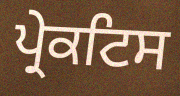
ਪ੍ਰੇਕਟਿਸ